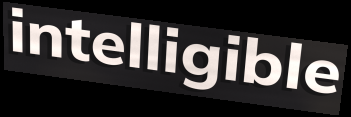
intelligible